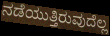
ನಡೆಯುತ್ತಿರುವುದೆಲ್ಲ